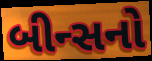
બીન્સનો